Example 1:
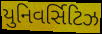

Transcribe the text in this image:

યુનિવર્સિટિઝ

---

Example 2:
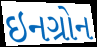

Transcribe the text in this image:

ઇનગ્રોન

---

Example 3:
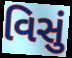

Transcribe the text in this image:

વિસું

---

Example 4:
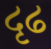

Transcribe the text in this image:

દૃઢ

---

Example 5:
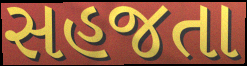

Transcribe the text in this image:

સહજતા